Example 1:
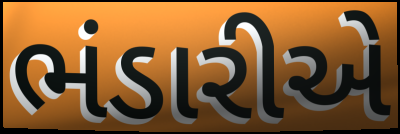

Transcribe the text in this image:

ભંડારીએ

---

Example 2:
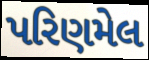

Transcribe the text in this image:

પરિણમેલ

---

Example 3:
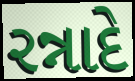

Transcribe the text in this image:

રન્નાદે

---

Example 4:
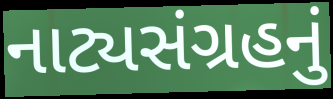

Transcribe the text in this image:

નાટ્યસંગ્રહનું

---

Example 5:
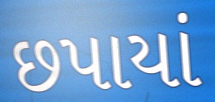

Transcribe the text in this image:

છપાયાં